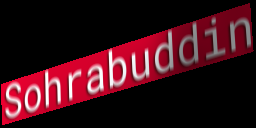
Sohrabuddin